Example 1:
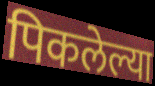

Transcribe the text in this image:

पिकलेल्या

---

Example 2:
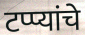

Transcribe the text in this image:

टप्प्यांचे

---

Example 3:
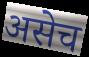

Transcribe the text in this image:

असेच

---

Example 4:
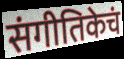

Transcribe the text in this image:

संगीतिकेचं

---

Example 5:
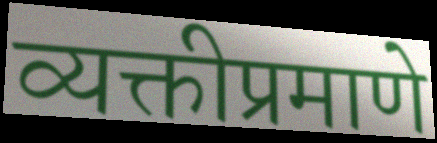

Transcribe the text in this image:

व्यक्तीप्रमाणे